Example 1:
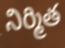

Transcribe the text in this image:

నిర్మిత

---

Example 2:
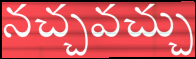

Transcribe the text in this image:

నచ్చవచ్చు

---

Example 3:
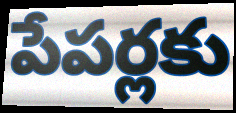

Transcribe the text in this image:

పేపర్లకు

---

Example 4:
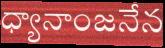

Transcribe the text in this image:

ధ్యానాంజనేన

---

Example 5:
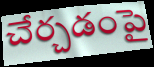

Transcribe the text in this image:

చేర్చడంపై